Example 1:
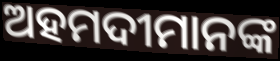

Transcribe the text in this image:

ଅହମଦୀମାନଙ୍କ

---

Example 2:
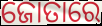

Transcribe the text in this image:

ଜୋତାରେ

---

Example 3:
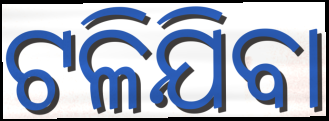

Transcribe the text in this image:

ଟଳିଯିବା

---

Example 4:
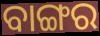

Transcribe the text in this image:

ବାଙ୍ଗର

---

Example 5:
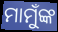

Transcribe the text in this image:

ମାମୁଁଙ୍କ